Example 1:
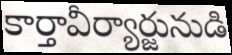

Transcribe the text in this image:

కార్తావీర్యార్జునుడి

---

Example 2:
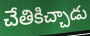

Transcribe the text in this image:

చేతికిచ్చాడు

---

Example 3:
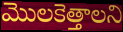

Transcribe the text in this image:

మొలకెత్తాలని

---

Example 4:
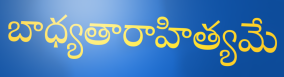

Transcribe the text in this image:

బాధ్యతారాహిత్యమే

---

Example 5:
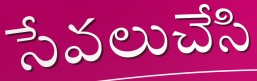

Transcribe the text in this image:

సేవలుచేసి